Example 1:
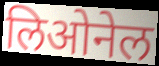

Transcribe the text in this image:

लिओनेल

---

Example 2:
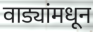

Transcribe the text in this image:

वाड्यांमधून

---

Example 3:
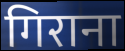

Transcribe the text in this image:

गिराना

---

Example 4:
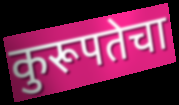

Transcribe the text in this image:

कुरूपतेचा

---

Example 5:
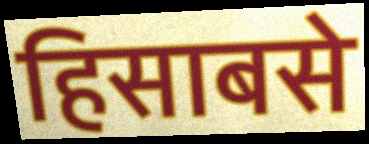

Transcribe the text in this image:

हिसाबसे